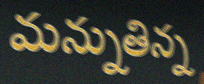
మన్నుతిన్న